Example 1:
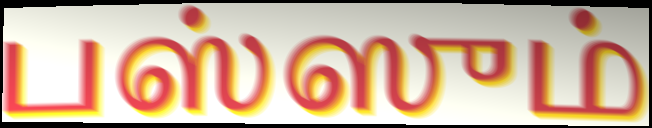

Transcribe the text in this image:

பஸ்ஸும்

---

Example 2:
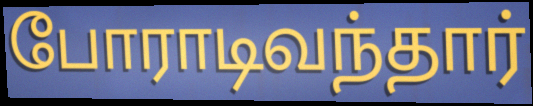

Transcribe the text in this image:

போராடிவந்தார்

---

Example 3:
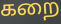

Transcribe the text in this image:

கறை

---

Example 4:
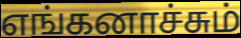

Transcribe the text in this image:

எங்கனாச்சும்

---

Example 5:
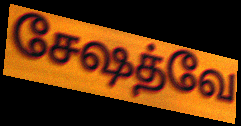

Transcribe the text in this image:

சேஷத்வே